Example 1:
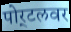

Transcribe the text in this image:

पोर्टलवर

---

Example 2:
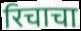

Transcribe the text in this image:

रिचाचा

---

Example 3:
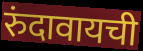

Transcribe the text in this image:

रुंदावायची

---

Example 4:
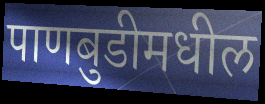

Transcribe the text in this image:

पाणबुडीमधील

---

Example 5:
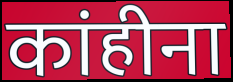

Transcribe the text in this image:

कांहीना